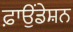
ਫ਼ਾਉਂਡੇਸ਼ਨ